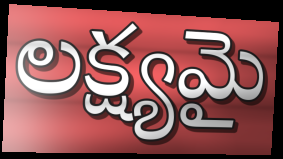
లక్ష్యమై